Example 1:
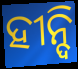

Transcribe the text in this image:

ହୀନ୍ଦି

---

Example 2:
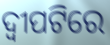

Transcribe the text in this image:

ଦ୍ୱୀପଟିରେ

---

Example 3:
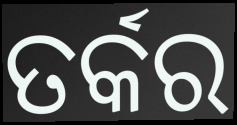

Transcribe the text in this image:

ତର୍କର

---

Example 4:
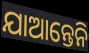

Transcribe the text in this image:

ଯାଆନ୍ତେନି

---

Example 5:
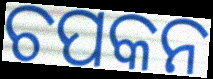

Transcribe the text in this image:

ଚପକନ